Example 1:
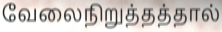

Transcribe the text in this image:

வேலைநிறுத்தத்தால்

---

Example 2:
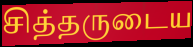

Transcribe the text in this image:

சித்தருடைய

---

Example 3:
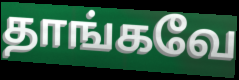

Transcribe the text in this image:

தாங்கவே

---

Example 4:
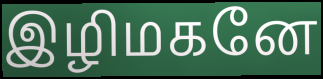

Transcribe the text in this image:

இழிமகனே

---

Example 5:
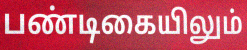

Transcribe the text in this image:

பண்டிகையிலும்